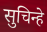
सुचिन्हे